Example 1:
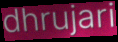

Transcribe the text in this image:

dhrujari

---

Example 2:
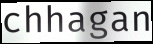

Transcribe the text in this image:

chhagan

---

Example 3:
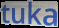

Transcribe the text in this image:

tuka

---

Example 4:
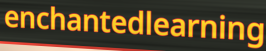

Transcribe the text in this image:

enchantedlearning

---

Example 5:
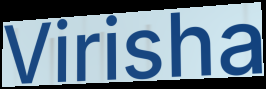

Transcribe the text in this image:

Virisha